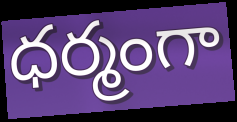
ధర్మంగా